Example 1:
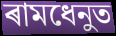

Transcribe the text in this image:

ৰামধেনুত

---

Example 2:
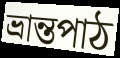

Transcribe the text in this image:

ভ্ৰান্তপাঠ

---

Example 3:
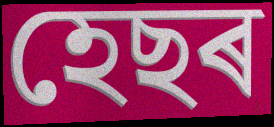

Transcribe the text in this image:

হেছৰ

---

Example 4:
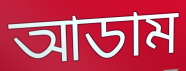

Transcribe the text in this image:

আডাম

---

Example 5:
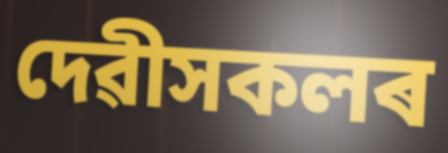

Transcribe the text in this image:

দেৱীসকলৰ